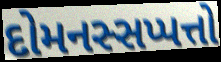
દોમનસ્સપ્પત્તો